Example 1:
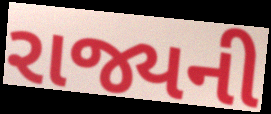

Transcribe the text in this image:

રાજ્યની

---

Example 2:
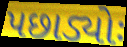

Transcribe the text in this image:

પછાડ્યોઃ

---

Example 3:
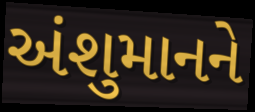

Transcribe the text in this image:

અંશુમાનને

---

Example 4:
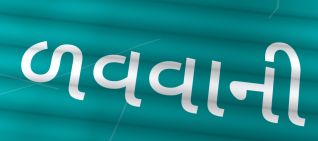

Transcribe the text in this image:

ળવવાની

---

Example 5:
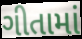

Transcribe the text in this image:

ગીતામાં